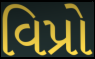
વિપ્રો